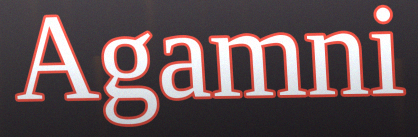
Agamni